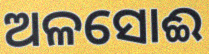
ଅଳସୋଈ